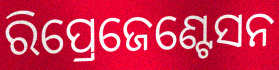
ରିପ୍ରେଜେଣ୍ଟେସନ